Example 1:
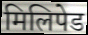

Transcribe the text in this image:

मिलिपेड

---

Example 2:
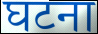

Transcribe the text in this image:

घटना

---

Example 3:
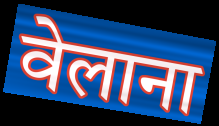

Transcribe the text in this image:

वेलाना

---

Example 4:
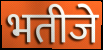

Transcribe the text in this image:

भतीजे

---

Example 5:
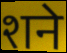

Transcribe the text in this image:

शने